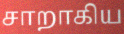
சாறாகிய